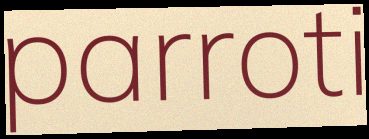
parroti